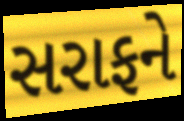
સરાફને